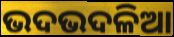
ଭଦଭଦଳିଆ